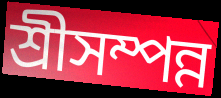
শ্রীসম্পন্ন